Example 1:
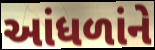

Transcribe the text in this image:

આંધળાંને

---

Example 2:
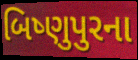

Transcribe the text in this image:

બિષ્ણુપુરના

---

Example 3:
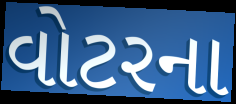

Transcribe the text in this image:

વોટરના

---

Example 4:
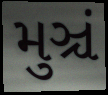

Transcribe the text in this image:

મુઞ્ચં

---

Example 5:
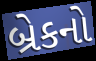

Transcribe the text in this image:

બ્રેકનો